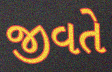
જીવતે